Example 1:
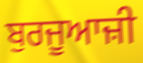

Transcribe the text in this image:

ਬੁਰਜੂਆਜ਼ੀ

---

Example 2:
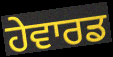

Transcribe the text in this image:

ਹੇਵਾਰਡ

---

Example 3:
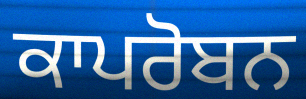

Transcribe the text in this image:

ਕਾਪਰੋਬਨ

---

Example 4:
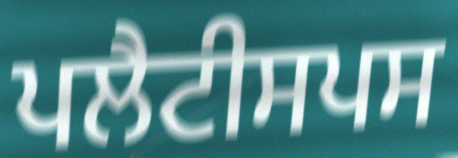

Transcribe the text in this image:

ਪਲੈਟੀਸਪਸ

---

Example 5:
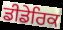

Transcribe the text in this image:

ਡੀਡੇਰਿਕ